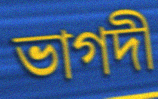
ভাগদী